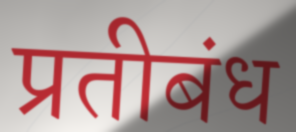
प्रतीबंध